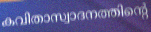
കവിതാസ്വാദനത്തിന്റെ